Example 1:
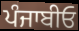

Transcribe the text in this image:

ਪੰਜਾਬੀਓ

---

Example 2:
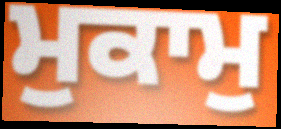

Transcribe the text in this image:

ਮੁਕਾਮੁ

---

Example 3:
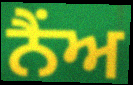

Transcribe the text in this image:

ਨੈਂਅ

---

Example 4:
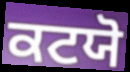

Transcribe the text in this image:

ਕਟਯੋ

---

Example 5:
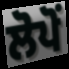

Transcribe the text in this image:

ਲੋਪੋਂ